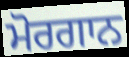
ਮੋਰਗਾਨ